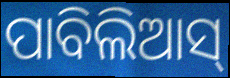
ପାବିଲିଆସ୍